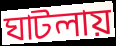
ঘাটলায়